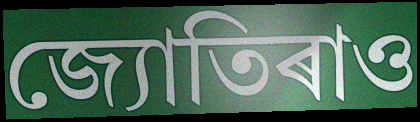
জ্যোতিৰাও